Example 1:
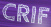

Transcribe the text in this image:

CRIF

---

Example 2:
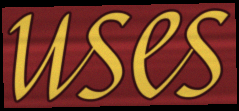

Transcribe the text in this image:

uses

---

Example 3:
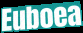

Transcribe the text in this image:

Euboea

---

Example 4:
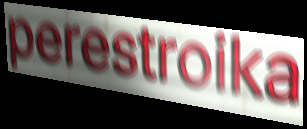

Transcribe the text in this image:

perestroika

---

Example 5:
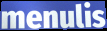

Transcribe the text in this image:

menulis